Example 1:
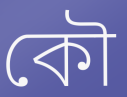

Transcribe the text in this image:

কৌ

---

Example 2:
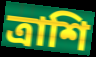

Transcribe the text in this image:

ত্রাশি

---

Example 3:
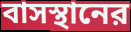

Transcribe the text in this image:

বাসস্থানের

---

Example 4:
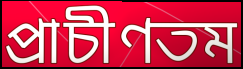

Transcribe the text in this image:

প্রাচীণতম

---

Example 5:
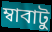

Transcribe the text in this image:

ম্বাবাটু